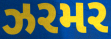
ઝરમર